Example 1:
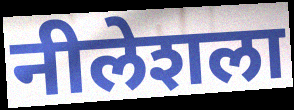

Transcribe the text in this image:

नीलेशला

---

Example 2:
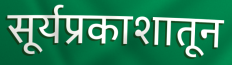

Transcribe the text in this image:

सूर्यप्रकाशातून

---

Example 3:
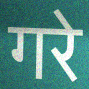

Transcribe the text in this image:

गरे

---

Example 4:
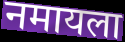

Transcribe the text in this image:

नमायला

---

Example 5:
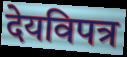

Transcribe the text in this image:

देयविपत्र